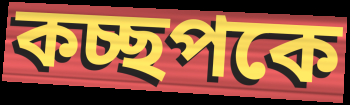
কচ্ছপকে